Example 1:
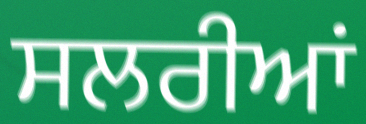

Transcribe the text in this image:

ਸਲਰੀਆਂ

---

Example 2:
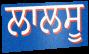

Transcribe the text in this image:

ਲਾਲਸੂ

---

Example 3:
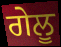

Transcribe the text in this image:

ਗੇਲੂ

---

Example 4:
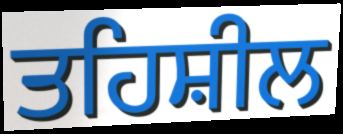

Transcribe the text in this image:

ਤਹਿਸ਼ੀਲ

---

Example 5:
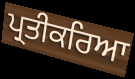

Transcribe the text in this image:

ਪ੍ਰਤੀਕਰਿਆ